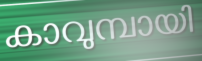
കാവുമ്പായി